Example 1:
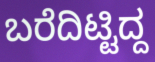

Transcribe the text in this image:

ಬರೆದಿಟ್ಟಿದ್ದ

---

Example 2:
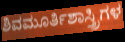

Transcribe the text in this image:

ಶಿವಮೂರ್ತಿಶಾಸ್ತ್ರಿಗಳ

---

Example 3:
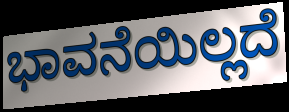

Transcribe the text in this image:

ಭಾವನೆಯಿಲ್ಲದೆ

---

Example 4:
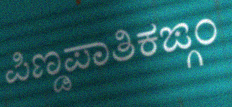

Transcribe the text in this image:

ಪಿಣ್ಡಪಾತಿಕಙ್ಗಂ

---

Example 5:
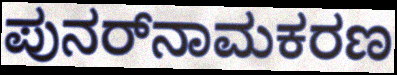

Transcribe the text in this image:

ಪುನರ್‌ನಾಮಕರಣ